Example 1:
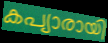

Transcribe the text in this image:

കപ്യാരായി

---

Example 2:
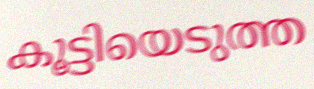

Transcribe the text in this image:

കൂട്ടിയെടുത്ത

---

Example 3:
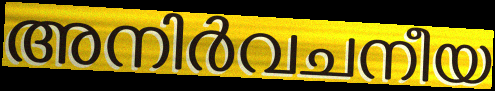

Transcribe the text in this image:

അനിർവചനീയ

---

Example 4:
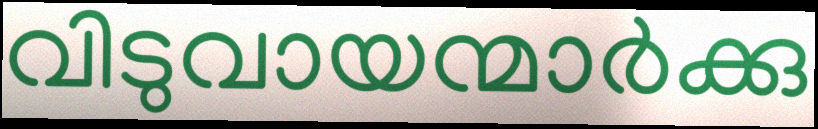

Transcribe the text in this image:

വിടുവായന്മാർക്കു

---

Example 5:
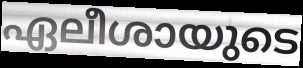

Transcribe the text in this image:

ഏലീശായുടെ